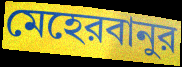
মেহেরবানুর